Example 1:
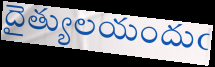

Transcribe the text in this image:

దైత్యులయందుఁ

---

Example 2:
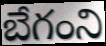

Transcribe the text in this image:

బేగంని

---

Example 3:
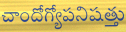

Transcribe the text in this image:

చాందోగ్యోపనిషత్తు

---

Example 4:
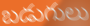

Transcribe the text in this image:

బడుగులు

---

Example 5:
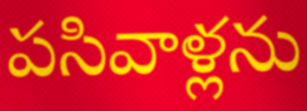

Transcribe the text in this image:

పసివాళ్లను